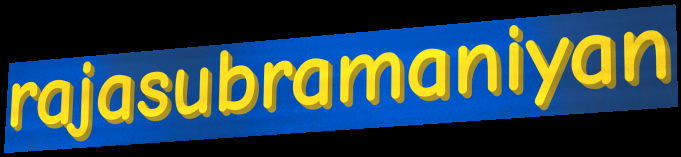
rajasubramaniyan